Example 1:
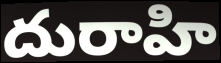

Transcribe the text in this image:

దురాహి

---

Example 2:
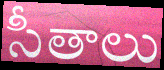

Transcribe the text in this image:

సీతాలు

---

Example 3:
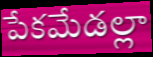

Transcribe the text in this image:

పేకమేడల్లా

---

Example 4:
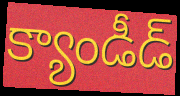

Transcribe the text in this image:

క్యాండీడ్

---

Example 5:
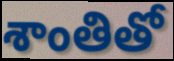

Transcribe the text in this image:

శాంతితో